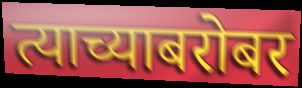
त्याच्याबरोबर